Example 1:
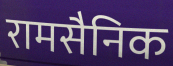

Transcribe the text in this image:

रामसैनिक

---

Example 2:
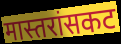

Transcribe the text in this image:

मास्तरांसकट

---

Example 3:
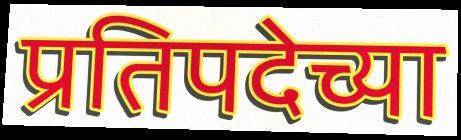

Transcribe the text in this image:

प्रतिपदेच्या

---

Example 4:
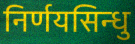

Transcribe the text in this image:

निर्णयसिन्धु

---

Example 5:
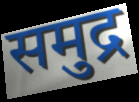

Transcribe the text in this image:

समुद्र